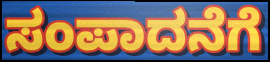
ಸಂಪಾದನೆಗೆ